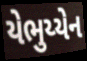
યેભુય્યેન